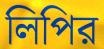
লিপির